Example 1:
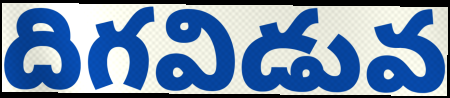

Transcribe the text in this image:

దిగవిడువ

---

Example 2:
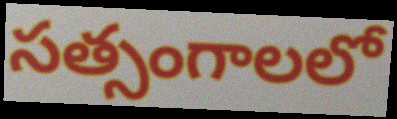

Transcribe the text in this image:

సత్సంగాలలో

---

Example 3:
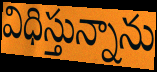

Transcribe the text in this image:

విధిస్తున్నాను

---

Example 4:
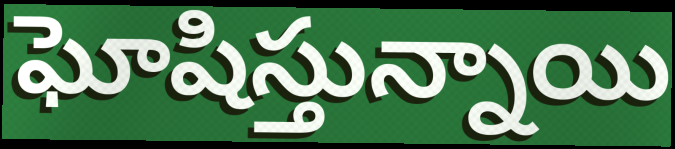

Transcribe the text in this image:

ఘోషిస్తున్నాయి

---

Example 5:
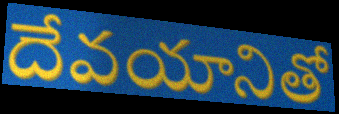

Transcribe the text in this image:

దేవయానితో